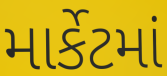
માર્કેટમાં